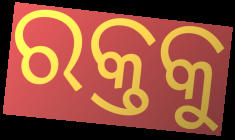
ରକ୍ତକୁ